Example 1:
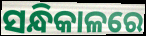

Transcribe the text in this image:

ସନ୍ଧିକାଳରେ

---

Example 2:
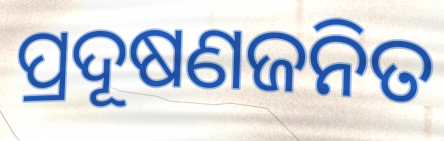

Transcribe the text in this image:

ପ୍ରଦୂଷଣଜନିତ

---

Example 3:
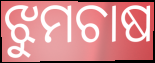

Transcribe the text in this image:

ଝୁମଚାଷ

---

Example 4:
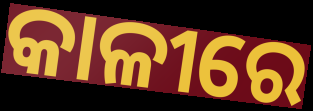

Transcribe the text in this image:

କାଳୀରେ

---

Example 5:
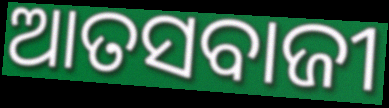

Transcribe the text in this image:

ଆତସବାଜୀ